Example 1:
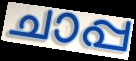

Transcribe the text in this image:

ചാപ്പ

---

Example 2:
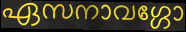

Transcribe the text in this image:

ഏസനാവഗ്ഗോ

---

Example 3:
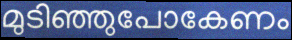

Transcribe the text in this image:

മുടിഞ്ഞുപോകേണം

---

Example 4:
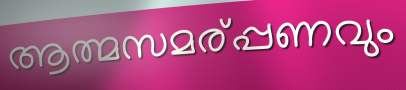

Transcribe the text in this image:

ആത്മസമര്പ്പണവും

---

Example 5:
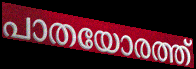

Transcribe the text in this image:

പാതയോരത്ത്